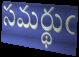
సమర్థుఁ